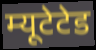
म्यूटेटेड